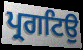
ਪ੍ਰਗਟਿਉ